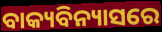
ବାକ୍ୟବିନ୍ୟାସରେ